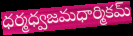
ధర్మధ్వజమధార్మికమ్